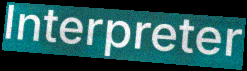
Interpreter